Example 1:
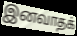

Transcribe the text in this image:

இனவாதக்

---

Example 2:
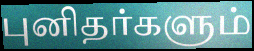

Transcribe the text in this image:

புனிதர்களும்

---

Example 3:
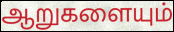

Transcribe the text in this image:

ஆறுகளையும்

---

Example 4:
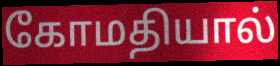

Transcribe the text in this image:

கோமதியால்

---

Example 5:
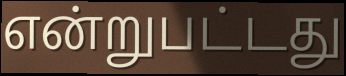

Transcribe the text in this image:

என்றுபட்டது